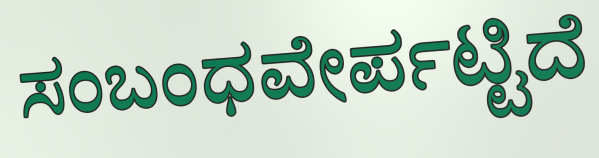
ಸಂಬಂಧವೇರ್ಪಟ್ಟಿದೆ